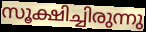
സൂക്ഷിച്ചിരുന്നു